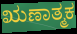
ಋಣಾತ್ಮಕ